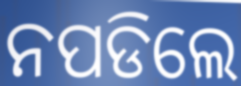
ନପଡିଲେ